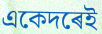
একেদৰেই